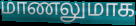
மாணலுமாக